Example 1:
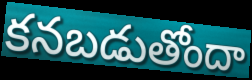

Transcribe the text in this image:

కనబడుతోందా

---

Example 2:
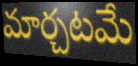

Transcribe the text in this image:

మార్చటమే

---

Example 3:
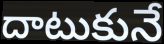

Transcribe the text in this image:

దాటుకునే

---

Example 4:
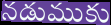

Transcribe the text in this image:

నడుముకు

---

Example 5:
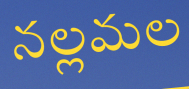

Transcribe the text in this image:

నల్లమల